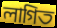
লাগিত